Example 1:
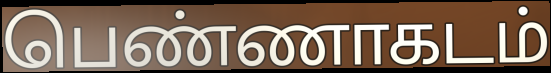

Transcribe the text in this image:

பெண்ணாகடம்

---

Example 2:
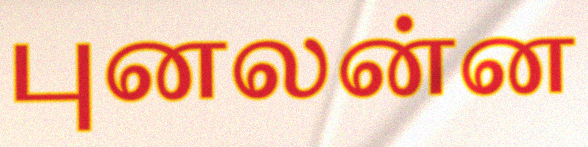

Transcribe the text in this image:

புனலன்ன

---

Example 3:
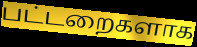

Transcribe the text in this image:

பட்டறைகளாக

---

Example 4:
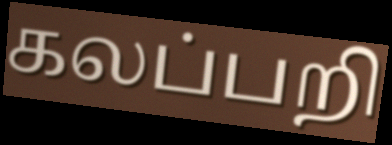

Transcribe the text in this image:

கலப்பறி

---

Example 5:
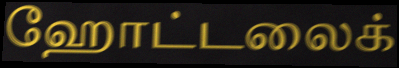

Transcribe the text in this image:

ஹோட்டலைக்